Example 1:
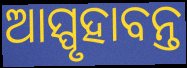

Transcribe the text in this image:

ଆସ୍ପୃହାବନ୍ତ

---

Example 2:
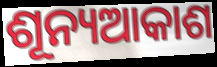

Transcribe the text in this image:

ଶୂନ୍ୟଆକାଶ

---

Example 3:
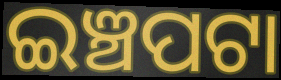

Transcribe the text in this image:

ଇଞ୍ଚପଟା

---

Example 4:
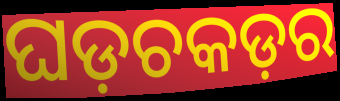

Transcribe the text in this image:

ଘଡ଼ଚକଡ଼ର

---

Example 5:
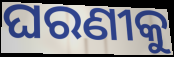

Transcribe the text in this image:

ଘରଣୀକୁ